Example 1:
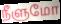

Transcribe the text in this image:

நீளுமோ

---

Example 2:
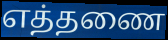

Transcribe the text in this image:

எத்தணை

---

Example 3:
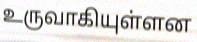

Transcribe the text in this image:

உருவாகியுள்ளன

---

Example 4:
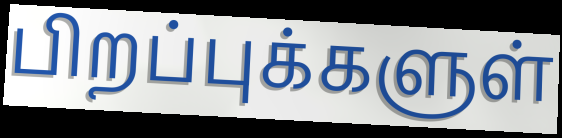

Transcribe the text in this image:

பிறப்புக்களுள்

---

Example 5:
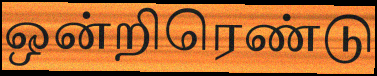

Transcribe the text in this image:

ஒன்றிரெண்டு